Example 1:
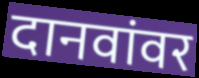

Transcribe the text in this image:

दानवांवर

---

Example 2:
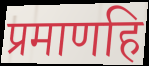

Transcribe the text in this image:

प्रमाणहि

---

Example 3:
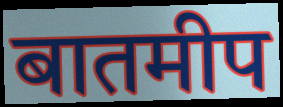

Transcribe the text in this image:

बातमीप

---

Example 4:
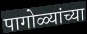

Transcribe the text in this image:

पागोळ्यांच्या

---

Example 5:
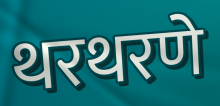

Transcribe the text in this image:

थरथरणे